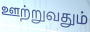
ஊற்றுவதும்